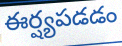
ఈర్ష్యపడడం